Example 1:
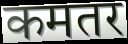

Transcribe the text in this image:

कमतर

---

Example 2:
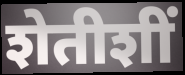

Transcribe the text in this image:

शेतीशीं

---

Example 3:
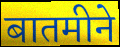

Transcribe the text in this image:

बातमीने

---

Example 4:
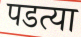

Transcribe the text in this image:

पडत्या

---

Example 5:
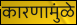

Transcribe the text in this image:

कारणामुंळे